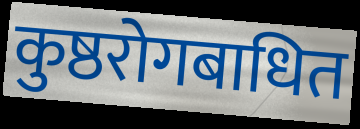
कुष्ठरोगबाधित